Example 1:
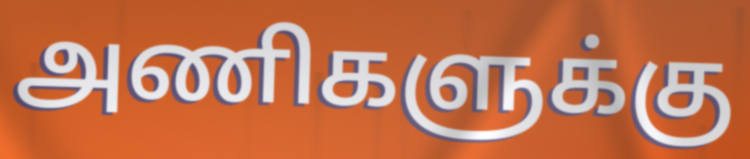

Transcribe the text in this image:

அணிகளுக்கு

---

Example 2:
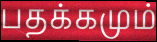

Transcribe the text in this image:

பதக்கமும்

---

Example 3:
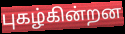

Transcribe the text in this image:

புகழ்கின்றன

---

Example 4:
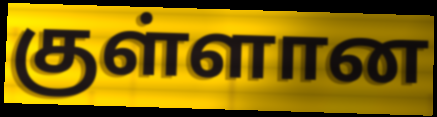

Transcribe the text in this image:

குள்ளான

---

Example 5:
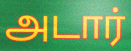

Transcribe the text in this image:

அடார்